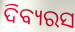
ଦିବ୍ୟରସ